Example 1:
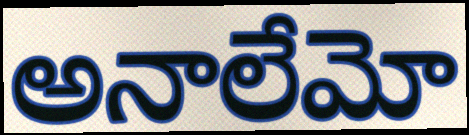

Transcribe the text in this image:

అనాలేమో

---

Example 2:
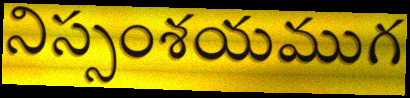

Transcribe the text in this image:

నిస్సంశయముగ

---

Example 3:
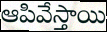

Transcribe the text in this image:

ఆపివేస్తాయి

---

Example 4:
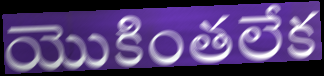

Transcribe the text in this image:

యొకింతలేక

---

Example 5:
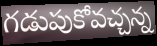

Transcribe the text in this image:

గడుపుకోవచ్చన్న